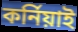
কর্নিয়াই